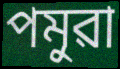
পমুৱা